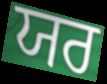
ਯਰ